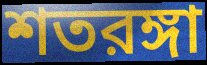
শতরঙ্গা